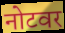
नोटवर